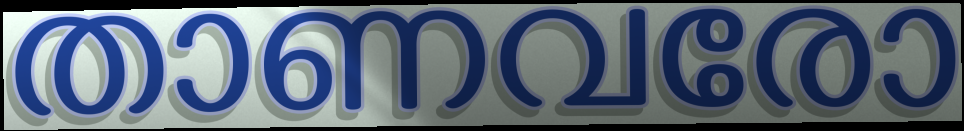
താണവരോ